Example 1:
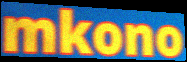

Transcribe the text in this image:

mkono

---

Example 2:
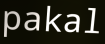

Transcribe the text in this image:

pakal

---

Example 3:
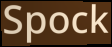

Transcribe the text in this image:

Spock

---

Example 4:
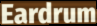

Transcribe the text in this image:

Eardrum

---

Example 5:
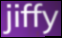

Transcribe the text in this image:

jiffy